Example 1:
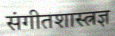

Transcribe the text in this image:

संगीतशास्त्रज्ञ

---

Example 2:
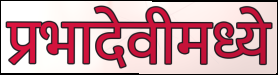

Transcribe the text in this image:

प्रभादेवीमध्ये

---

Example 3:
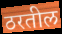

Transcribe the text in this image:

ठरतील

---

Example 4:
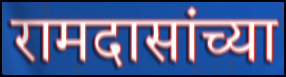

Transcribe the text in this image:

रामदासांच्या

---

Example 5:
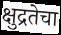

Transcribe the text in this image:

क्षुद्रतेचा